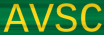
AVSC